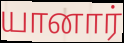
யானார்